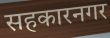
सहकारनगर